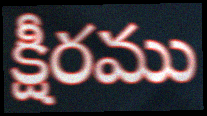
క్షీరము